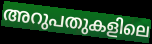
അറുപതുകളിലെ